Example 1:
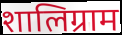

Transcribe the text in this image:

शालिग्राम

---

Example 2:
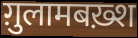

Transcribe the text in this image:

ग़ुलामबख़्श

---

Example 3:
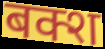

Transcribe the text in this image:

बक्श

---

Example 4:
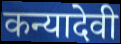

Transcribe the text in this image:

कन्यादेवी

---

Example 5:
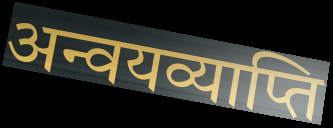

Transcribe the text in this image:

अन्वयव्याप्ति